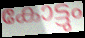
കോട്ടും